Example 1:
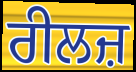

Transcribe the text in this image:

ਰੀਲਜ਼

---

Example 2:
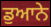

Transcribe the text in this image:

ਡੁਆਨੇ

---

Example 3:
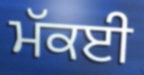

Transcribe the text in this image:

ਮੱਕਈ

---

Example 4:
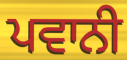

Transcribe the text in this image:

ਪਵਾਨੀ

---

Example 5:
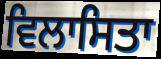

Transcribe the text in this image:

ਵਿਲਾਸਿਤਾ